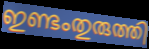
ഇണ്ടംതുരുത്തി